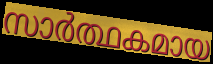
സാർത്ഥകമായ